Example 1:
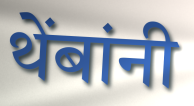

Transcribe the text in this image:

थेंबांनी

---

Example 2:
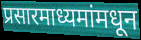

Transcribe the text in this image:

प्रसारमाध्यमांमधून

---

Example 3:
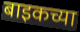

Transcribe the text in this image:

बाइकच्या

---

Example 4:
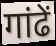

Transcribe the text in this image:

गांढें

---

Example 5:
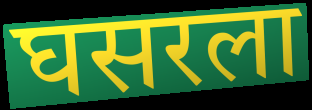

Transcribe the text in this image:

घसरला